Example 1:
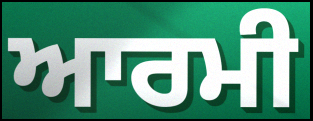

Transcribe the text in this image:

ਆਰਮੀ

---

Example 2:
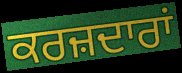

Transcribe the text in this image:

ਕਰਜ਼ਦਾਰਾਂ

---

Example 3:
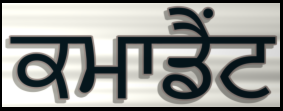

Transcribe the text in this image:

ਕਮਾਡੈਂਟ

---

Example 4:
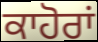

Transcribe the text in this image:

ਕਾਹੋਰਾਂ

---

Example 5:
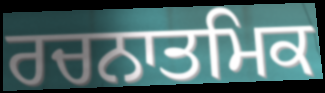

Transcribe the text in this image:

ਰਚਨਾਤਮਿਕ